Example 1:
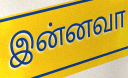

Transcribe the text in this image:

இன்னவா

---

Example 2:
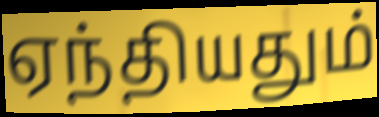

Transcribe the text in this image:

ஏந்தியதும்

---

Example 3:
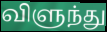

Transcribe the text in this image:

விளுந்து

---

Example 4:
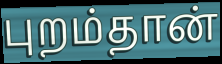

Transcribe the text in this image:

புறம்தான்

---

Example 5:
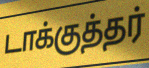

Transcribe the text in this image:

டாக்குத்தர்